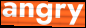
angry